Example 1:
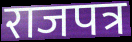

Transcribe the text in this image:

राजपत्र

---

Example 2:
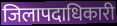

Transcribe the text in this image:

जिलापदाधिकारी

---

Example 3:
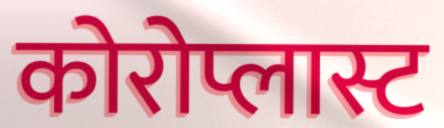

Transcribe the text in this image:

कोरोप्लास्ट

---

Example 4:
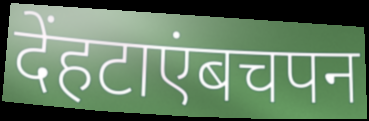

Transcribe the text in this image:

देंहटाएंबचपन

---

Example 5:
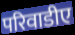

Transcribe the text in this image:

परिवाडीए